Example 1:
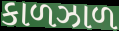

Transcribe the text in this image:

કાળઝાળ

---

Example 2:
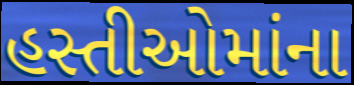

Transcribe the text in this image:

હસ્તીઓમાંના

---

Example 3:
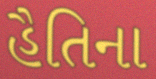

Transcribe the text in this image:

હૈતિના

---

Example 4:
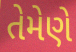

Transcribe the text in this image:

તેમેણે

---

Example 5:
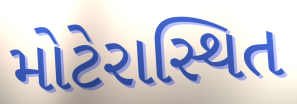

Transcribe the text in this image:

મોટેરાસ્થિત